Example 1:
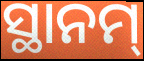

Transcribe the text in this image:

ସ୍ଥାନମ୍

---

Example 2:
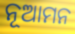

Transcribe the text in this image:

ନୂଆମନ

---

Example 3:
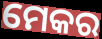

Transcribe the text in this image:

ମେକର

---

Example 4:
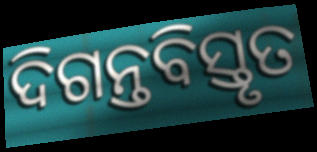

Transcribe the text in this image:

ଦିଗନ୍ତବିସ୍ତୃତ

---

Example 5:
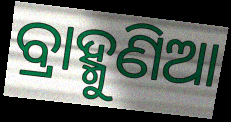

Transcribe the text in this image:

ବ୍ରାହ୍ମୁଣିଆ